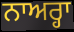
ਨਾਅਰ੍ਹਾ